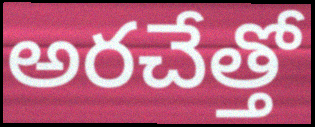
అరచేత్తో